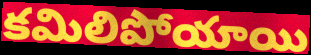
కమిలిపోయాయి